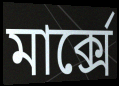
মাৰ্ক্সে